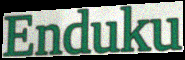
Enduku